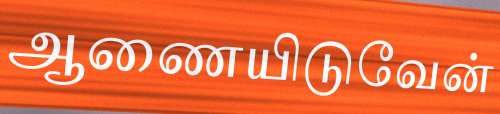
ஆணையிடுவேன்